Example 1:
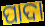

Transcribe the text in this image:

ପାଦା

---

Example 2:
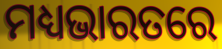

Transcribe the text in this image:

ମଧ୍ୟଭାରତରେ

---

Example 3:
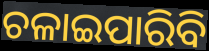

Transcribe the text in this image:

ଚଳାଇପାରିବି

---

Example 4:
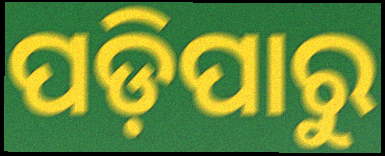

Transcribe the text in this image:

ପଡ଼ିପାରୁ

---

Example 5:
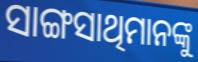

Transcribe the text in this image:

ସାଙ୍ଗସାଥିମାନଙ୍କୁ